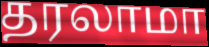
தரலாமா